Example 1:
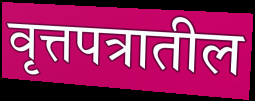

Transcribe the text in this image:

वृत्तपत्रातील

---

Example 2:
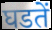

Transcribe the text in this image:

घडतें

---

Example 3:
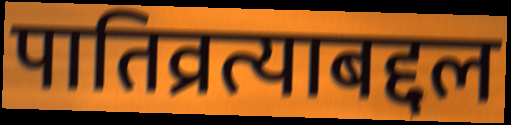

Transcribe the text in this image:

पातिव्रत्याबद्दल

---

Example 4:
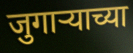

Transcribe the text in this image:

जुगाऱ्याच्या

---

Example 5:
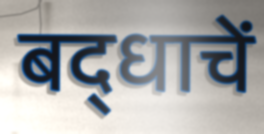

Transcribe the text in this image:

बद्धाचें